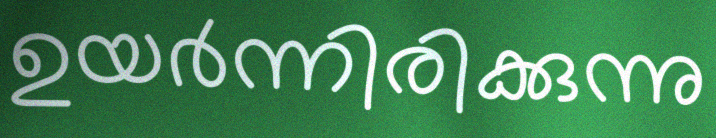
ഉയർന്നിരിക്കുന്നു